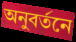
অনুবর্তনে